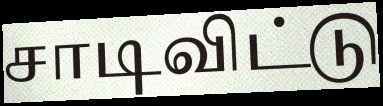
சாடிவிட்டு